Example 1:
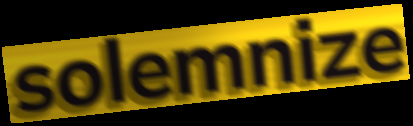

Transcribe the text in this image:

solemnize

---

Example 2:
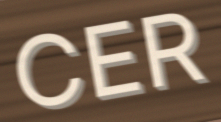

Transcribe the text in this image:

CER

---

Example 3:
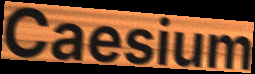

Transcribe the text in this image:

Caesium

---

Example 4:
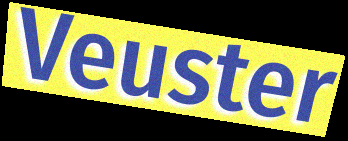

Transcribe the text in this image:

Veuster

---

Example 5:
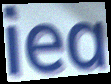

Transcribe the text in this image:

iea